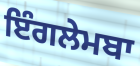
ਇੰਗਲੇਮਬਾ